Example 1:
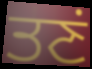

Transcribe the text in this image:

ਤਣਂ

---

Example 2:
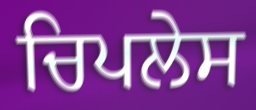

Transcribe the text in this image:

ਚਿਪਲੇਸ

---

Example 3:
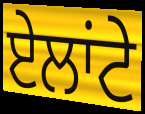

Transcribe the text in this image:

ਏਲਾਂਟੇ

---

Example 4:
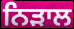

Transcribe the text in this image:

ਨਿੜਾਲ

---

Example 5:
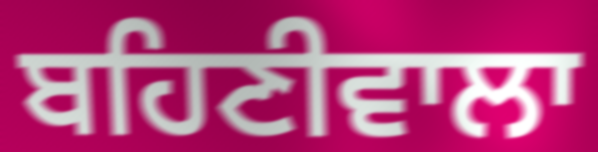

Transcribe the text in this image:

ਬਹਿਣੀਵਾਲਾ